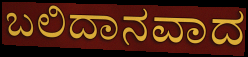
ಬಲಿದಾನವಾದ